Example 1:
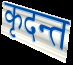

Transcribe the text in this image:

कृदन्त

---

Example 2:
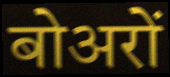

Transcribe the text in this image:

बोअरों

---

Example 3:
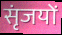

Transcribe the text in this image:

सृंजयों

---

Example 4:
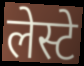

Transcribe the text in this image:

लेस्टे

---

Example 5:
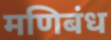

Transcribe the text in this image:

मणिबंध